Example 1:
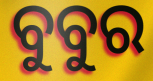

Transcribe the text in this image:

ବୁବୁର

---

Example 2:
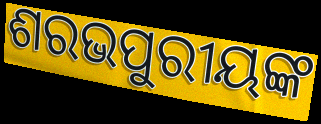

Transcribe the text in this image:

ଶରଭପୁରୀୟଙ୍କ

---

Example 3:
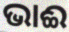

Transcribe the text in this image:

ଭାଈ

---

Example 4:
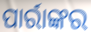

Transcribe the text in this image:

ପାର୍ରାଙ୍କର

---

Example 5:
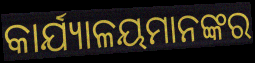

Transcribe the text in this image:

କାର୍ଯ୍ୟାଳୟମାନଙ୍କର